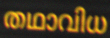
തഥാവിധ